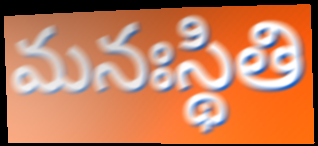
మనఃస్థితి